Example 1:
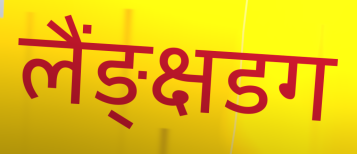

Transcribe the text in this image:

लैंङ्क्षडग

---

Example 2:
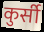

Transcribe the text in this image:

कुर्सी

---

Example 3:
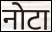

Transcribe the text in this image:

नोटा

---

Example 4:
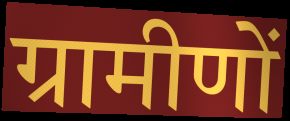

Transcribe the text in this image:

ग्रामीणों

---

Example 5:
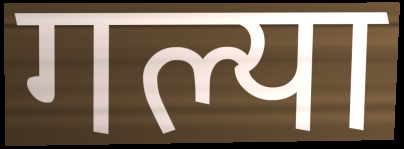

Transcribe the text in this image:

गल्या